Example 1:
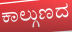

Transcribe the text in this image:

ಕಾಲ್ಗುಣದ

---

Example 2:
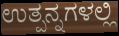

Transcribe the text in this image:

ಉತ್ಪನ್ನಗಳಲ್ಲಿ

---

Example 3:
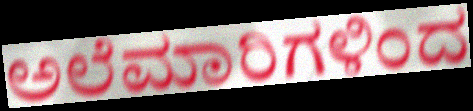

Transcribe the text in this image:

ಅಲೆಮಾರಿಗಳಿಂದ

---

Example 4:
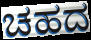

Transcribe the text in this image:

ಚಹದ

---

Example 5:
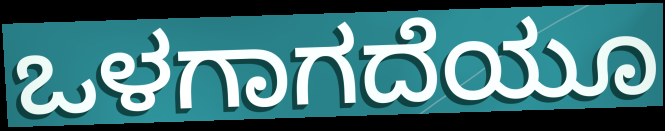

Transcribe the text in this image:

ಒಳಗಾಗದೆಯೂ